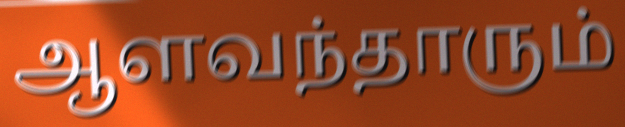
ஆளவந்தாரும்